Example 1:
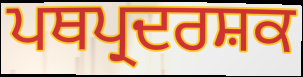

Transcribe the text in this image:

ਪਥਪ੍ਰਦਰਸ਼ਕ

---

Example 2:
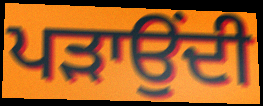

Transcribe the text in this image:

ਪੜਾਉਂਦੀ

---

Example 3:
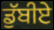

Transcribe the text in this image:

ਡੁੱਬੀਏ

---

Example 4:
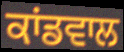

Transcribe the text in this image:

ਕਾਂਡਵਾਲ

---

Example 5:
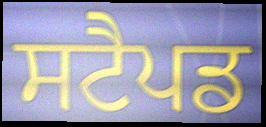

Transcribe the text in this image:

ਸਟੈਪਡ